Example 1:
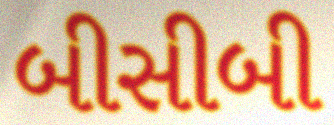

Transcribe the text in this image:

બીસીબી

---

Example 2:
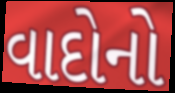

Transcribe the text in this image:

વાદોનો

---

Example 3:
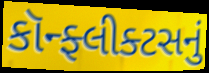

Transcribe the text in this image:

કૉન્ફ્લીક્ટસનું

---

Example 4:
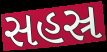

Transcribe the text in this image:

સહસ્ર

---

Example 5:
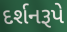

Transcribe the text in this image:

દર્શનરૂપે